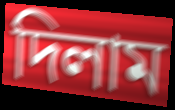
দিলাম